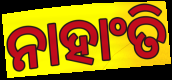
ନାହାଂତି